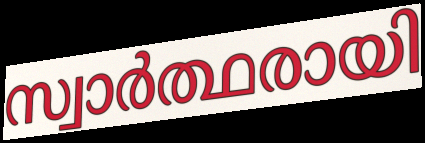
സ്വാർത്ഥരായി